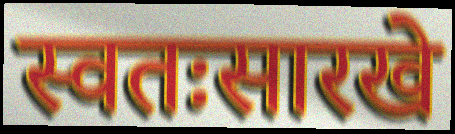
स्वतःसारखे